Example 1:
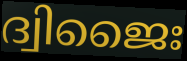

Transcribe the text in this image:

ദ്വിജൈഃ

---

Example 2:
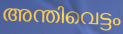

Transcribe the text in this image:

അന്തിവെട്ടം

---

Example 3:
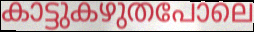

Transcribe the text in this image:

കാട്ടുകഴുതപോലെ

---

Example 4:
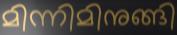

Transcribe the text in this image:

മിന്നിമിനുങ്ങി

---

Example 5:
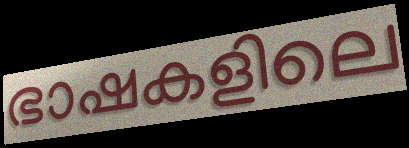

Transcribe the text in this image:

ഭാഷകളിലെ